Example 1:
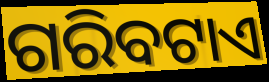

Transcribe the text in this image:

ଗରିବଟାଏ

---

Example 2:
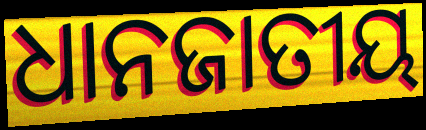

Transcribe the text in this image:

ଧାନଜାତୀୟ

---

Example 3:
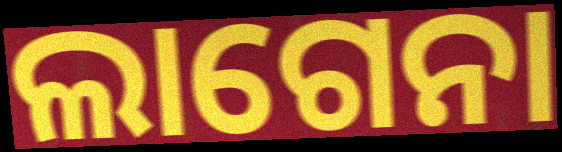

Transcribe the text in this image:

ଲାଗେନା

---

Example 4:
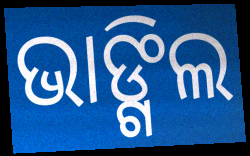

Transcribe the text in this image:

ଭାଙ୍ଗିଲ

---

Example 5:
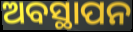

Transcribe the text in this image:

ଅବସ୍ଥାପନ